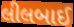
લીલબાઈ